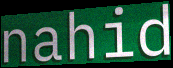
nahid